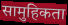
सामुहिकता